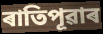
ৰাতিপূৱাৰ